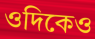
ওদিকেও